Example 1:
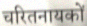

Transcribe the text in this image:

चरितनायकों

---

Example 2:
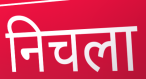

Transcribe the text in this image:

निचला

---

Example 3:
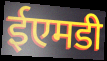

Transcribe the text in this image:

ईएमडी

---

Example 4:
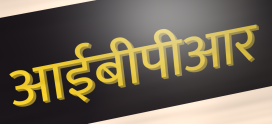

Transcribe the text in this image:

आईबीपीआर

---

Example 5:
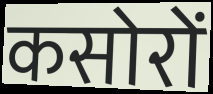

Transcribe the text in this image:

कसोरों